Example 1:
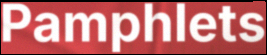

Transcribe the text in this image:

Pamphlets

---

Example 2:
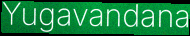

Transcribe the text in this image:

Yugavandana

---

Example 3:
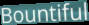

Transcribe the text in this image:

Bountiful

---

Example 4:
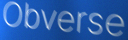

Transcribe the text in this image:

Obverse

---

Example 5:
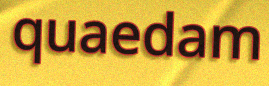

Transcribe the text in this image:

quaedam